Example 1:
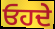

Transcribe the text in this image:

ਓਹਦੇ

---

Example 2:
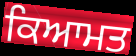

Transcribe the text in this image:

ਕਿਆਮਤ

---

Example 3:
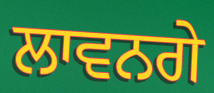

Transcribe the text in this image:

ਲਾਵਨਗੇ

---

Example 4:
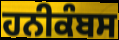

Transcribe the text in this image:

ਹਨੀਕੰਬਸ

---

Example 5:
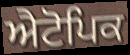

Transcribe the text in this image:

ਐਟੋਪਿਕ